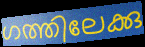
ഗത്തിലേക്കു